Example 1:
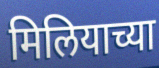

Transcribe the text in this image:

मिलियाच्या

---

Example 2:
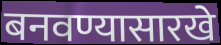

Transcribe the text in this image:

बनवण्यासारखे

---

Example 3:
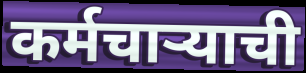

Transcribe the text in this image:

कर्मचार्‍याची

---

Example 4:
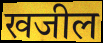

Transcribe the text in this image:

खजील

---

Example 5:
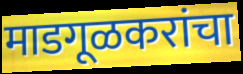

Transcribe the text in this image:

माडगूळकरांचा